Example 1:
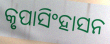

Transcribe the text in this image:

କୃପାସିଂହାସନ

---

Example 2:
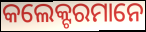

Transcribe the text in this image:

କଲେକ୍ଟରମାନେ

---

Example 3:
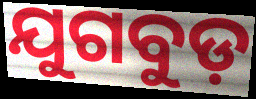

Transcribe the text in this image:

ଯୁଗବୁଡ଼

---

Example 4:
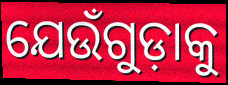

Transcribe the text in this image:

ଯେଉଁଗୁଡ଼ାକୁ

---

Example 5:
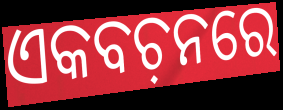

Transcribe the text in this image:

ଏକବଚ଼ନରେ